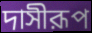
দাসীরূপ